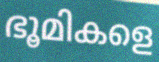
ഭൂമികളെ